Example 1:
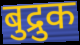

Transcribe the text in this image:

बुद्रुक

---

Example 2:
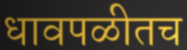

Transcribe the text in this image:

धावपळीतच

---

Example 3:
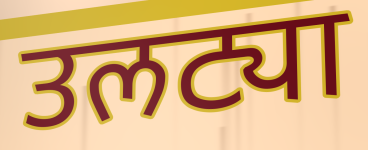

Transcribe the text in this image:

उलट्या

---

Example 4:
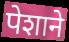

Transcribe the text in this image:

पेशाने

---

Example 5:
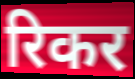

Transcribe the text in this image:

रिकर